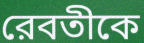
রেবতীকে